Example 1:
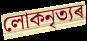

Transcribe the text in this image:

লোকনৃত্যৰ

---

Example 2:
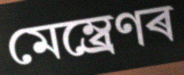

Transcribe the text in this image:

মেম্ব্ৰেণৰ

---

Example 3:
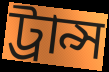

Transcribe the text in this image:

ট্ৰান্স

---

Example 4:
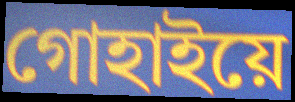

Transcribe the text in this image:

গোহাইয়ে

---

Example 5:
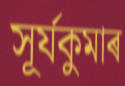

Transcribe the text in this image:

সূৰ্যকুমাৰ